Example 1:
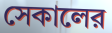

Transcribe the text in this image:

সেকালের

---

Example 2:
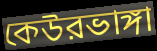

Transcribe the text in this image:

কেউরভাঙ্গা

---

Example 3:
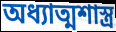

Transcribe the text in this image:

অধ্যাত্মশাস্ত্র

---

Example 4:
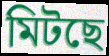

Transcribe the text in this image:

মিটছে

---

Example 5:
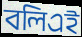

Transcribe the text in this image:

বলিএই